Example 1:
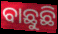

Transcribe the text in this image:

ବାଛୁଛି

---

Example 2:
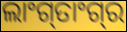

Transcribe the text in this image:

ଲାଂଗ୍‍ତାଂଗ୍‍ର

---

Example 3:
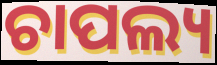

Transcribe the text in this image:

ଚାପଲ୍ୟ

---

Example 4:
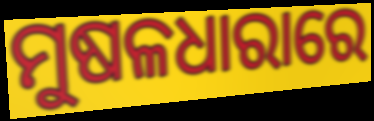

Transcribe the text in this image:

ମୁଷଳଧାରାରେ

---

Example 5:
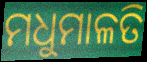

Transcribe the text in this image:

ମଧୁମାଳତି